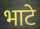
भाटे